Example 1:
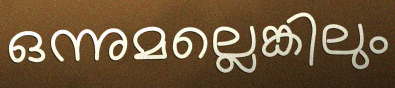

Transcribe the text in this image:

ഒന്നുമല്ലെങ്കിലും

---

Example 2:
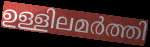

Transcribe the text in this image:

ഉള്ളിലമർത്തി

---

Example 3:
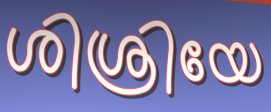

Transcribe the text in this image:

ശിശ്രിയേ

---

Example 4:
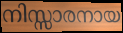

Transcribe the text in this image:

നിസ്സാരനായ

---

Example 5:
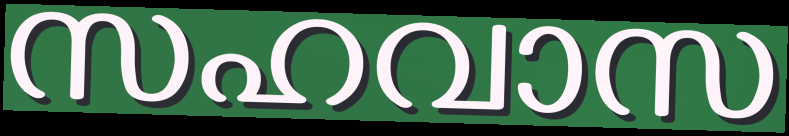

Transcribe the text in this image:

സഹവാസ